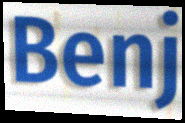
Benj